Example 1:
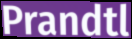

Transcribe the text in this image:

Prandtl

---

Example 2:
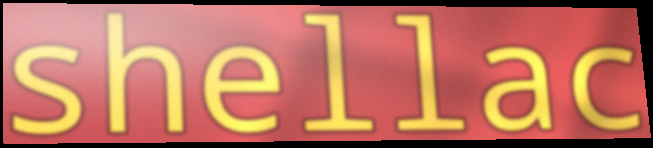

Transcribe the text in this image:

shellac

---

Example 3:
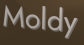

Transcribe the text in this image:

Moldy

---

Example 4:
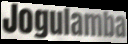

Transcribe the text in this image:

Jogulamba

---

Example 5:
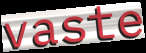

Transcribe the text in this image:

vaste